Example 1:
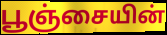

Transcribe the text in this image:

பூஞ்சையின்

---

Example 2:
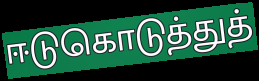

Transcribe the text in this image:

ஈடுகொடுத்துத்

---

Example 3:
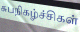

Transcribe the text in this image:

சுபநிகழ்ச்சிகள்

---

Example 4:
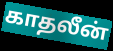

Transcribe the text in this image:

காதலீன்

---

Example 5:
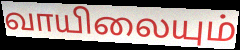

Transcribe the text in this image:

வாயிலையும்